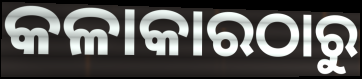
କଳାକାରଠାରୁ